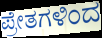
ಪ್ರೇತಗಳಿಂದ